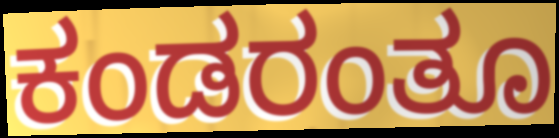
ಕಂಡರಂತೂ